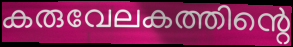
കരുവേലകത്തിന്റെ